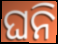
ଘନି